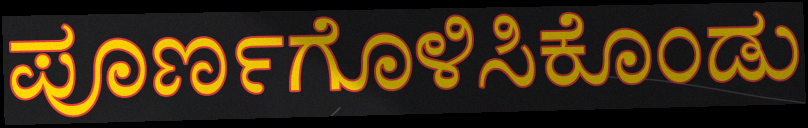
ಪೂರ್ಣಗೊಳಿಸಿಕೊಂಡು